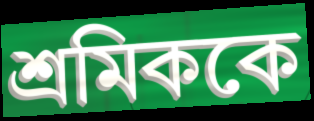
শ্রমিককে